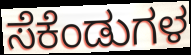
ಸೆಕೆಂಡುಗಳ